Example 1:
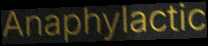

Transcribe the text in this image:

Anaphylactic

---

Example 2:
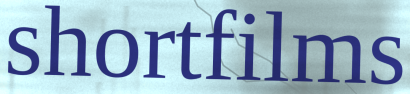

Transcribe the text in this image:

shortfilms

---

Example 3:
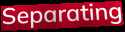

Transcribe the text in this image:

Separating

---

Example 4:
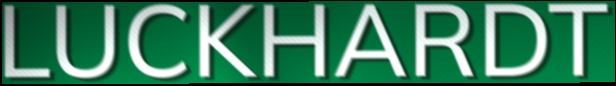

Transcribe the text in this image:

LUCKHARDT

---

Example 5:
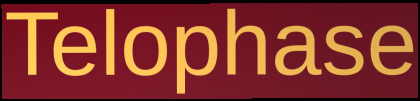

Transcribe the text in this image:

Telophase